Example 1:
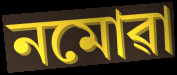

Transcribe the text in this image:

নমোৱা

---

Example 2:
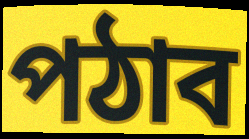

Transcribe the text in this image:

পঠাব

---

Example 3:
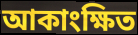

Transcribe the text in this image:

আকাংক্ষিত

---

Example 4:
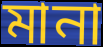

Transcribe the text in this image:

মানা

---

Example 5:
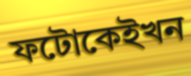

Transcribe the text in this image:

ফটোকেইখন